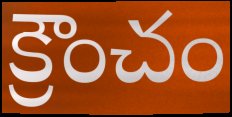
క్రౌంచం